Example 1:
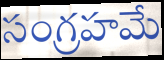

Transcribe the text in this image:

సంగ్రహమే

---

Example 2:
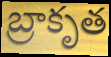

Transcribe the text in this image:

బ్రాకృత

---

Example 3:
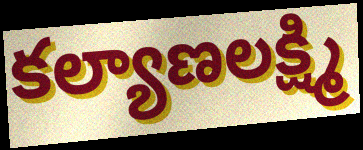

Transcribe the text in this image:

కల్యాణలక్ష్మి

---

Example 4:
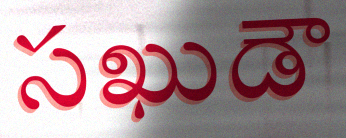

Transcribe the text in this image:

సఖుడౌ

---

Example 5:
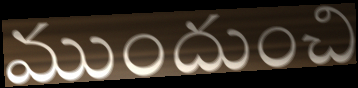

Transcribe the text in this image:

ముందుంచి